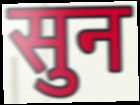
सुन